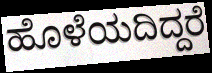
ಹೊಳೆಯದಿದ್ದರೆ